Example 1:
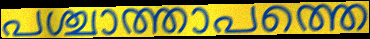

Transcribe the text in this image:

പശ്ചാത്താപത്തെ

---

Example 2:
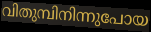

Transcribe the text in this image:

വിതുമ്പിനിന്നുപോയ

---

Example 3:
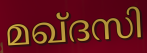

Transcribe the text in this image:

മഖ്ദസി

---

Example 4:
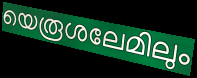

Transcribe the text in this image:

യെരൂശലേമിലും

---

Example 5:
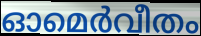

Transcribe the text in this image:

ഓമെർവീതം